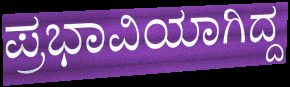
ಪ್ರಭಾವಿಯಾಗಿದ್ದ